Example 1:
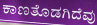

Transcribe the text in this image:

ಕಾಣತೊಡಗಿದೆವು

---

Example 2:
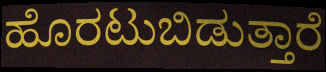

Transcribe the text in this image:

ಹೊರಟುಬಿಡುತ್ತಾರೆ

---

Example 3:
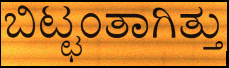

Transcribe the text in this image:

ಬಿಟ್ಟಂತಾಗಿತ್ತು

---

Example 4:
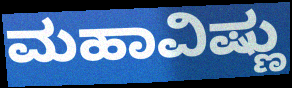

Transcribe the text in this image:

ಮಹಾವಿಷ್ಣು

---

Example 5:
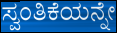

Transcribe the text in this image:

ಸ್ವಂತಿಕೆಯನ್ನೇ